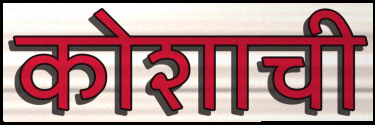
कोशाची